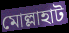
মোল্লাহাট